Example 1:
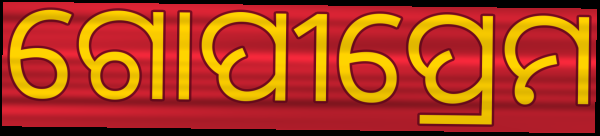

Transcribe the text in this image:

ଗୋପୀପ୍ରେମ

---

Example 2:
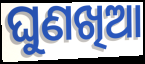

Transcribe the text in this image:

ଘୁଣଖିଆ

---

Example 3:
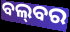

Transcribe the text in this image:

ବଲ୍‌ବର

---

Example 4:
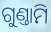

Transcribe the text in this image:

ଗୁଣ୍ତାମି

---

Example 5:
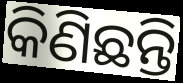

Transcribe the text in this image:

କିଣିଛନ୍ତି